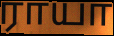
ராயா